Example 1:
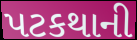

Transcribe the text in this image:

પટકથાની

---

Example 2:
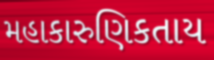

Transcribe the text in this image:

મહાકારુણિકતાય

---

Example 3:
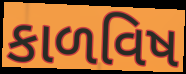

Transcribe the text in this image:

કાળવિષ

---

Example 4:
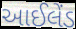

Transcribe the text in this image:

આઈલેંડ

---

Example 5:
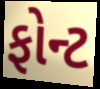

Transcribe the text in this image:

ફોન્ટ